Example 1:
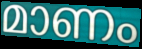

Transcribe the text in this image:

മാണം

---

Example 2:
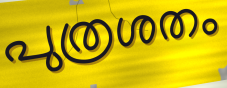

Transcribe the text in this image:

പുത്രശതം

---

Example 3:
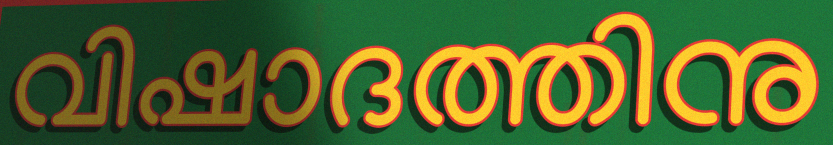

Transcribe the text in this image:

വിഷാദത്തിനു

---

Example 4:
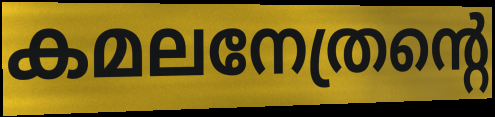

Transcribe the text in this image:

കമലനേത്രന്റെ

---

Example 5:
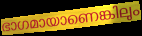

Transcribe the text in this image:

ഭാഗമായാണെങ്കിലും